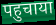
पहुचाया